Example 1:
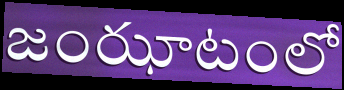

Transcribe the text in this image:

జంఝాటంలో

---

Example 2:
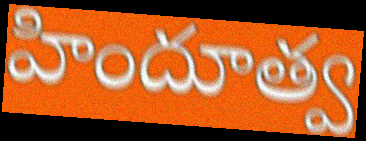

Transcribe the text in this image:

హిందూత్వ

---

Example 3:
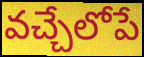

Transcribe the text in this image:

వచ్చేలోపే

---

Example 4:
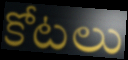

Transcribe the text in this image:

కోటలు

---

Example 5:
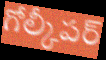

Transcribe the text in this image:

గోల్కీపర్